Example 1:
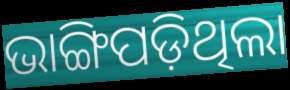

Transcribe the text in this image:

ଭାଙ୍ଗିପଡ଼ିଥିଲା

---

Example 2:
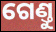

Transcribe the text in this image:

ଗେଣ୍ତୁ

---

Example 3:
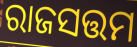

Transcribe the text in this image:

ରାଜସତ୍ତମ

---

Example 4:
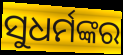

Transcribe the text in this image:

ସୁଧର୍ମଙ୍କର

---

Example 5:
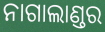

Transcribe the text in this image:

ନାଗାଲାଣ୍ଡର